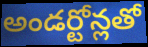
అండర్టోన్లతో